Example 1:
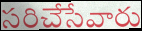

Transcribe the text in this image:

సరిచేసేవారు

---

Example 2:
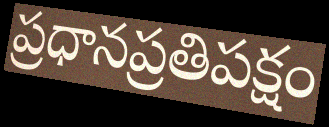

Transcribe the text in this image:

ప్రధానప్రతిపక్షం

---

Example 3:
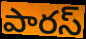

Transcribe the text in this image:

పారస్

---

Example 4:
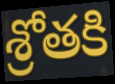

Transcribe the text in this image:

శ్రోతకి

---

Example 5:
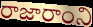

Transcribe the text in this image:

రాజారాంని